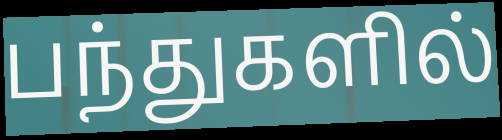
பந்துகளில்